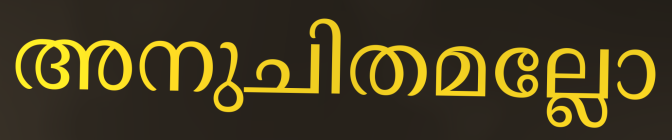
അനുചിതമല്ലോ